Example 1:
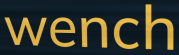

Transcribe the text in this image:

wench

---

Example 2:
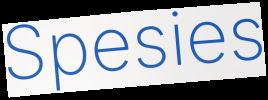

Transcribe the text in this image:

Spesies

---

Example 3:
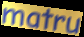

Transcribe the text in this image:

matru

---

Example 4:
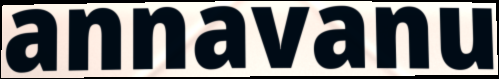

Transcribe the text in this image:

annavanu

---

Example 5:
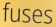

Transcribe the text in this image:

fuses